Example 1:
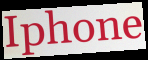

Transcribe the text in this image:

Iphone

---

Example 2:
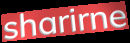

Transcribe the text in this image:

sharirne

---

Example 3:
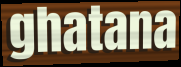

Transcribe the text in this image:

ghatana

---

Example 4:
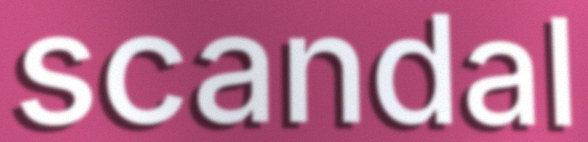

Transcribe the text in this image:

scandal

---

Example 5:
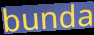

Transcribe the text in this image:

bunda